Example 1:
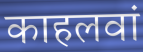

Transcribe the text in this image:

काहलवां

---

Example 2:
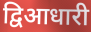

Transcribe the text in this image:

द्विआधारी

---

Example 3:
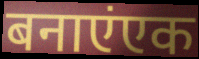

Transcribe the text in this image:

बनाएंएक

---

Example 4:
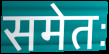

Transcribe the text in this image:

समेतः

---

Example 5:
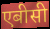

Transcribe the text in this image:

एबीसी